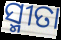
ସ୍ମୀତା